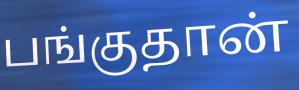
பங்குதான்